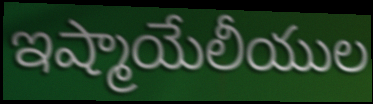
ఇష్మాయేలీయుల